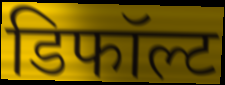
डिफॉल्ट